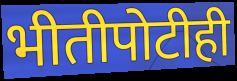
भीतीपोटीही